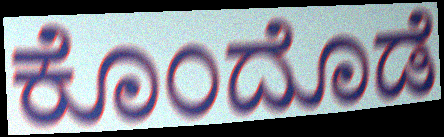
ಕೊಂದೊಡೆ